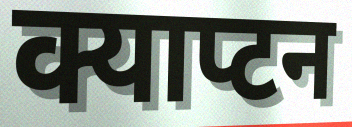
क्याप्टन